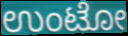
ಉಂಟೋ